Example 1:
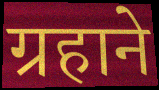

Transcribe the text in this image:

ग्रहाने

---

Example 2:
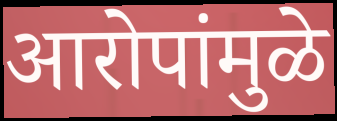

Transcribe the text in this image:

आरोपांमुळे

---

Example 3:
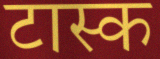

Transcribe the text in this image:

टास्क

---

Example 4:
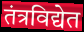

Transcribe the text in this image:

तंत्रविद्येत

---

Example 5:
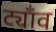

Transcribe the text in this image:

ट्याँव